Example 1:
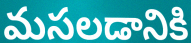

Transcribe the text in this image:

మసలడానికి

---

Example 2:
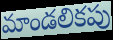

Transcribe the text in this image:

మాండలికపు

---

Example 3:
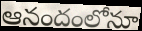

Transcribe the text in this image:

ఆనందంలోనూ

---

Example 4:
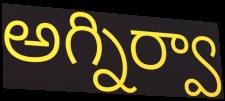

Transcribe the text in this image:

అగ్నిర్వా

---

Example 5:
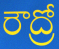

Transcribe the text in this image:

రౌద్రో